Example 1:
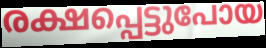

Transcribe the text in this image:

രക്ഷപ്പെട്ടുപോയ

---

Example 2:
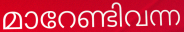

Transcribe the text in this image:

മാറേണ്ടിവന്ന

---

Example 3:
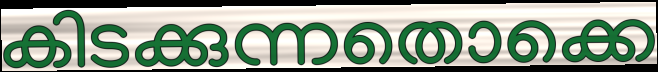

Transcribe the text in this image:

കിടക്കുന്നതൊക്കെ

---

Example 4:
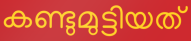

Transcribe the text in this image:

കണ്ടുമുട്ടിയത്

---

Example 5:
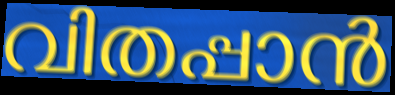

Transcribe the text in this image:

വിതപ്പാൻ